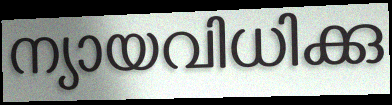
ന്യായവിധിക്കു